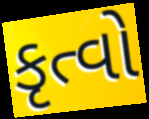
કૃત્વો